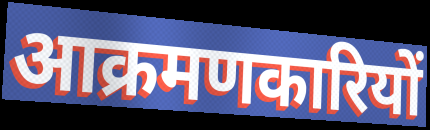
आक्रमणकारियों